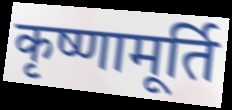
कृष्णामूर्ति